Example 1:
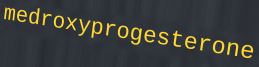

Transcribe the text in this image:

medroxyprogesterone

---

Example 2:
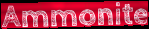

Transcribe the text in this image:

Ammonite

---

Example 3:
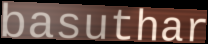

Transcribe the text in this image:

basuthar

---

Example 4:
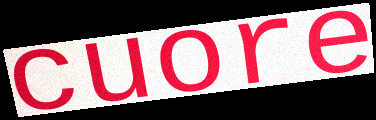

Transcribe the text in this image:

cuore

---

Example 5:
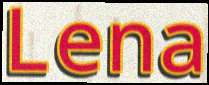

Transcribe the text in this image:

Lena